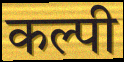
कल्पी